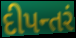
દીપન્તરં